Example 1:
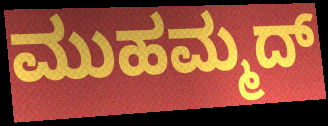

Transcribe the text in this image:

ಮುಹಮ್ಮದ್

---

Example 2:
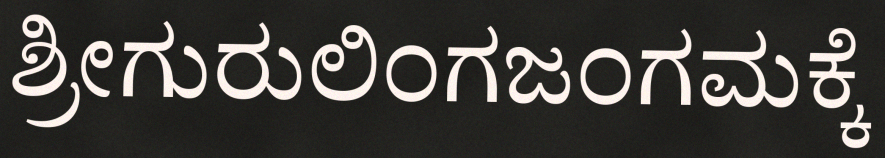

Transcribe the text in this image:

ಶ್ರೀಗುರುಲಿಂಗಜಂಗಮಕ್ಕೆ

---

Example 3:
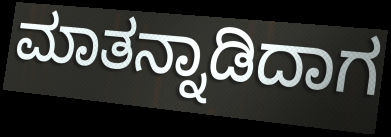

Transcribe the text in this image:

ಮಾತನ್ನಾಡಿದಾಗ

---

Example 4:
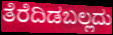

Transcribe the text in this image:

ತೆರೆದಿಡಬಲ್ಲದು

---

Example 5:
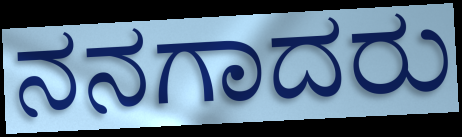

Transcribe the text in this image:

ನನಗಾದರು